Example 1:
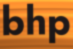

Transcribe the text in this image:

bhp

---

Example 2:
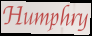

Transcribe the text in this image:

Humphry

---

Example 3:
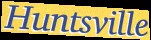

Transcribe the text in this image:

Huntsville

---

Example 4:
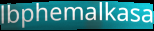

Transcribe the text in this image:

lbphemalkasa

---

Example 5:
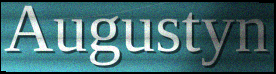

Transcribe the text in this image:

Augustyn